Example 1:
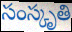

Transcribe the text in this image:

సంస్కృతి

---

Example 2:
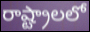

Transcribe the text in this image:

రాష్ట్రాలలో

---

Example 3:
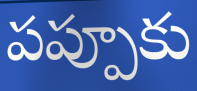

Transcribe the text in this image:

పప్పూకు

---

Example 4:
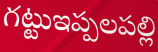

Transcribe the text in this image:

గట్టుఇప్పలపల్లి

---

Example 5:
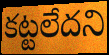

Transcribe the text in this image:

కట్టలేదని